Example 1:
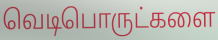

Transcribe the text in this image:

வெடிபொருட்களை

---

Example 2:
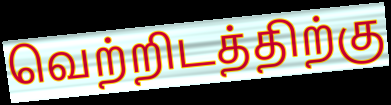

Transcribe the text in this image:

வெற்றிடத்திற்கு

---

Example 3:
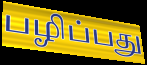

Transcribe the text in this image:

பழிப்பது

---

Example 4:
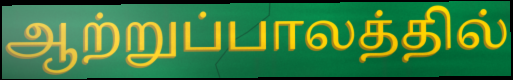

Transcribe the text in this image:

ஆற்றுப்பாலத்தில்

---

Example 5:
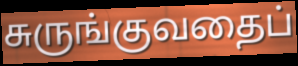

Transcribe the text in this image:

சுருங்குவதைப்